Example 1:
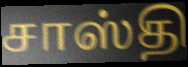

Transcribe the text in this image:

சாஸ்தி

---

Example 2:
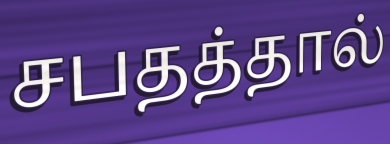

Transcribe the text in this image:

சபதத்தால்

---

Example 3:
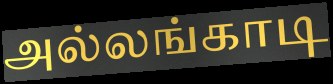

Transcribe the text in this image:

அல்லங்காடி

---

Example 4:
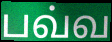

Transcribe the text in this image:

பவ்வ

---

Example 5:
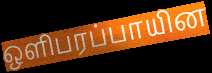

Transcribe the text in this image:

ஒளிபரப்பாயின